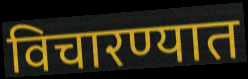
विचारण्यात